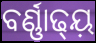
ବର୍ଣ୍ଣାଢ୍ୟ଼